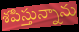
శపిస్తున్నాను